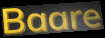
Baare